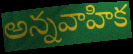
అన్నవాహిక